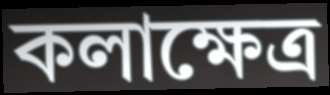
কলাক্ষেত্ৰ